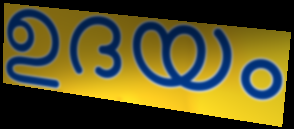
ഉദയം